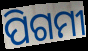
ପିଗମୀ